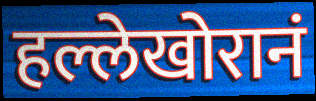
हल्लेखोरानं